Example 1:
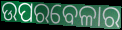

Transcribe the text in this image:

ଉପରବେଳାର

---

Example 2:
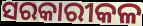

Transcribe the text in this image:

ସରକାରୀକଳ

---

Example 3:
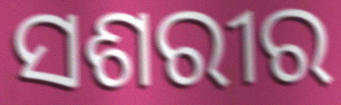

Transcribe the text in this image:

ସଶରୀର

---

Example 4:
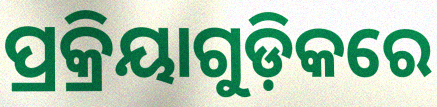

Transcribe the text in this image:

ପ୍ରକ୍ରିୟାଗୁଡ଼ିକରେ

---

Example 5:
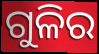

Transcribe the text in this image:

ଗୁଳିର